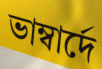
ভাম্বাৰ্দে